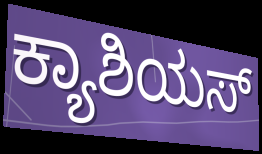
ಕ್ಯಾಶಿಯಸ್